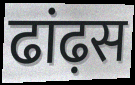
ढांढ़स